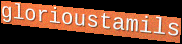
glorioustamils